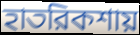
হাতরিকশায়